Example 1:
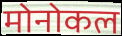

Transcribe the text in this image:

मोनोकल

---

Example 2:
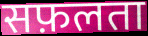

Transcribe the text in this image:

सफ़लता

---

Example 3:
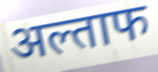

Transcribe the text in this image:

अल्ताफ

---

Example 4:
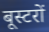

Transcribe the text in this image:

बूस्टरों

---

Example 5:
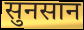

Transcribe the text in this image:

सुनसान